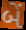
બેં